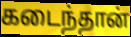
கடைந்தான்